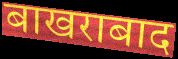
बाखराबाद